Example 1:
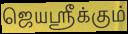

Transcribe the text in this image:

ஜெயஸ்ரீக்கும்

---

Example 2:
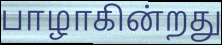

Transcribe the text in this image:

பாழாகின்றது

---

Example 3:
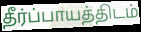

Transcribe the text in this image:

தீர்ப்பாயத்திடம்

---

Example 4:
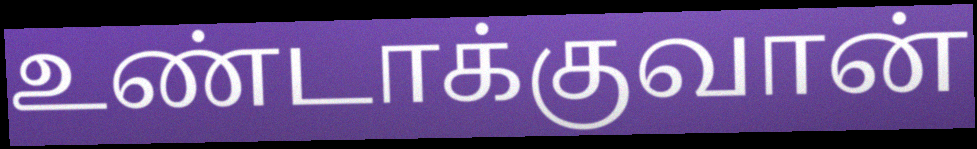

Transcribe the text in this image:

உண்டாக்குவான்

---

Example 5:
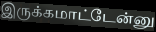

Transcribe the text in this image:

இருக்கமாட்டேன்னு